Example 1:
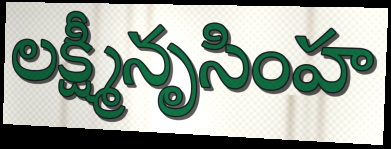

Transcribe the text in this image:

లక్ష్మీనృసింహ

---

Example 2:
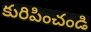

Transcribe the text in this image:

కురిపించండి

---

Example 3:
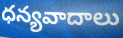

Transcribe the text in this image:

ధన్యవాదాలు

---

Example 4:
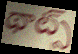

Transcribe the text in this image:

థాట్స్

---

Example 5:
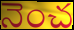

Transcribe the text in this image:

నెంచ